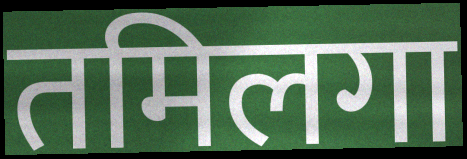
तमिलगा